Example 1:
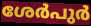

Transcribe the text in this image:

ശേർപുർ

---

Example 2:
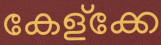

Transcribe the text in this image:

കേള്ക്കേ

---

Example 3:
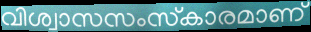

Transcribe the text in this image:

വിശ്വാസസംസ്‌കാരമാണ്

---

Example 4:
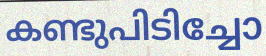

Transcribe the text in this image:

കണ്ടുപിടിച്ചോ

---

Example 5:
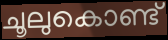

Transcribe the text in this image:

ചൂലുകൊണ്ട്